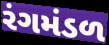
રંગમંડળ